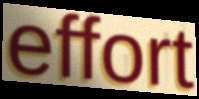
effort